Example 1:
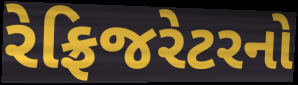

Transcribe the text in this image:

રેફ્રિજરેટરનો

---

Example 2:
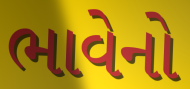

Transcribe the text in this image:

ભાવેનો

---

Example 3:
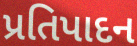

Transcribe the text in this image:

પ્રતિપાદન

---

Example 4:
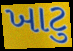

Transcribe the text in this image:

ખાટુ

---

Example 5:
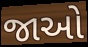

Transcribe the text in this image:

જાઓ